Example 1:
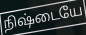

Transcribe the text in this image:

நிஷ்டையே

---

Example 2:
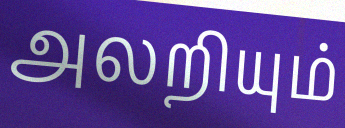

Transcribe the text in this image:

அலறியும்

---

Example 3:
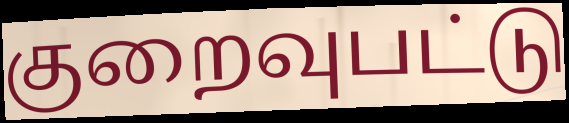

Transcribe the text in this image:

குறைவுபட்டு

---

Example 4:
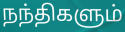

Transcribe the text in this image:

நந்திகளும்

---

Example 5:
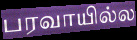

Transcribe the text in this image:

பரவாயில்ல